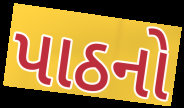
પાઠનો